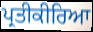
ਪ੍ਰਤੀਕੀਰਿਆ